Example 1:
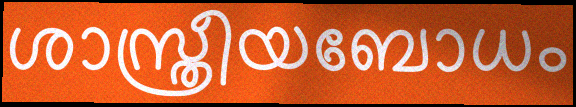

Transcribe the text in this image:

ശാസ്ത്രീയബോധം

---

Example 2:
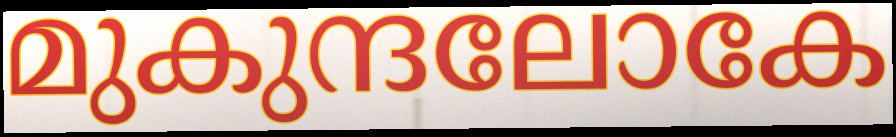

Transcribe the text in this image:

മുകുന്ദലോകേ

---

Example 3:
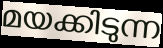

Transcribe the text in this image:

മയക്കിടുന്ന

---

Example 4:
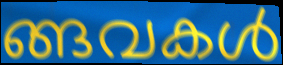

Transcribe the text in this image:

ങ്ങവകൾ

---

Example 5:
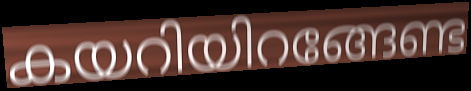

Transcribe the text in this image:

കയറിയിറങ്ങേണ്ട